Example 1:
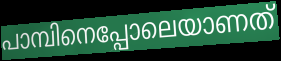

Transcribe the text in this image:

പാമ്പിനെപ്പോലെയാണത്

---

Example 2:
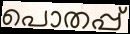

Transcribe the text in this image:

പൊതപ്പ്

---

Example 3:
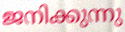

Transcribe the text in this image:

ജനിക്കുന്നു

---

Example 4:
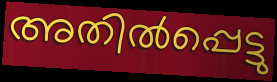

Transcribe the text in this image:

അതിൽപ്പെട്ടു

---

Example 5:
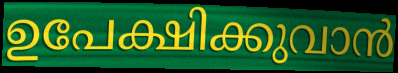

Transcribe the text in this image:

ഉപേക്ഷിക്കുവാൻ